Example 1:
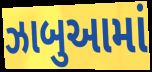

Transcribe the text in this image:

ઝાબુઆમાં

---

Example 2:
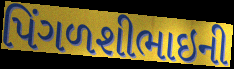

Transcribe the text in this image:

પિંગળશીભાઇની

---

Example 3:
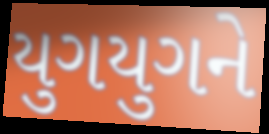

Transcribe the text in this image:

યુગયુગને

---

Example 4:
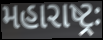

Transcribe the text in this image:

મહારાષ્ટ્રઃ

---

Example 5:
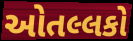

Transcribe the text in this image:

ઓતલ્લકો